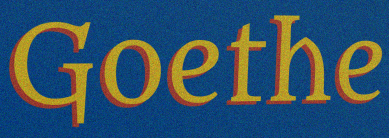
Goethe